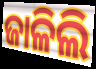
ଜାଳିଲି